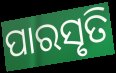
ପାରସୃତି